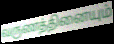
வருணத்தினையும்